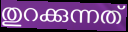
തുറക്കുന്നത്